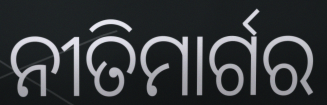
ନୀତିମାର୍ଗର